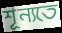
শূন্যতে